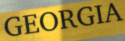
GEORGIA